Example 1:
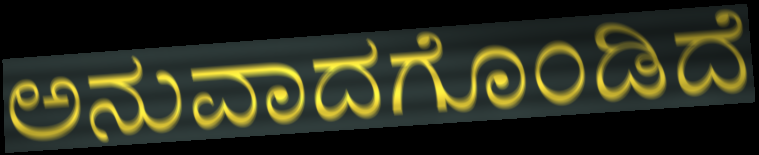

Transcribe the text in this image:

ಅನುವಾದಗೊಂಡಿದೆ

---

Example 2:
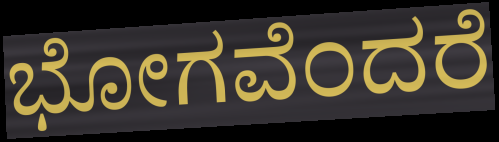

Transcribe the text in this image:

ಭೋಗವೆಂದರೆ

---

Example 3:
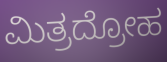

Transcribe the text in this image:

ಮಿತ್ರದ್ರೋಹ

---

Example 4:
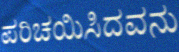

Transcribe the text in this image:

ಪರಿಚಯಿಸಿದವನು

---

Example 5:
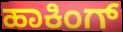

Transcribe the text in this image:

ಹಾಕಿಂಗ್